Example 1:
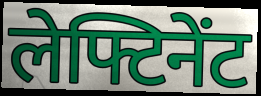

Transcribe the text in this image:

लेफ्टिनेंट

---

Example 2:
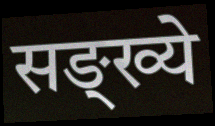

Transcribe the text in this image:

सङ्ख्ये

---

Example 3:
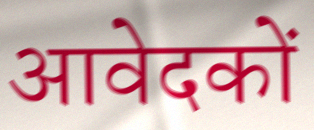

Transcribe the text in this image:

आवेदकों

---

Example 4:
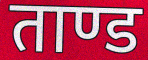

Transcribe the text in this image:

ताण्ड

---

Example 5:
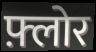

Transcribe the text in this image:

फ़्लोर